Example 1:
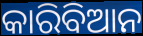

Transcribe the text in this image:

କାରିବିଆନ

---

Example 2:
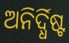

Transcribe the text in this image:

ଅନିର୍ଦ୍ଧିଷ୍ଟ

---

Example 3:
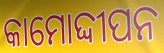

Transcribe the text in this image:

କାମୋଦ୍ଦୀପନ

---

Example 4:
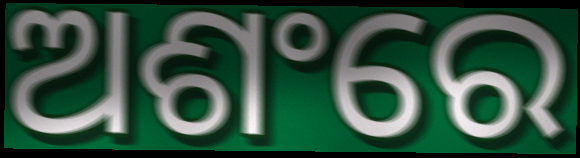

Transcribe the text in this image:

ଅଶଂରେ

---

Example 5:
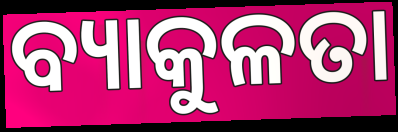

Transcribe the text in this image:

ବ୍ୟାକୁଳତା